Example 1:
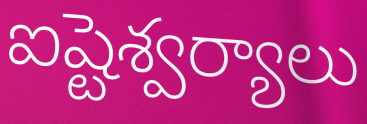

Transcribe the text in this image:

ఐష్టెశ్వర్యాలు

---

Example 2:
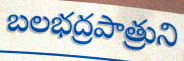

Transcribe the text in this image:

బలభద్రపాత్రుని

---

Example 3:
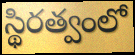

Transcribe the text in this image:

స్థిరత్వంలో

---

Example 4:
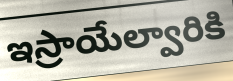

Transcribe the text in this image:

ఇస్రాయేల్వారికి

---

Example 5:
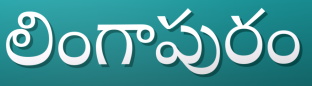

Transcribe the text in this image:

లింగాపురం